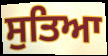
ਸੁਤਿਆ